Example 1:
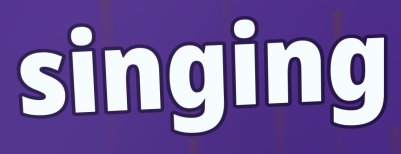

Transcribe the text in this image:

singing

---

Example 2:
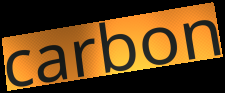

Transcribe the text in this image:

carbon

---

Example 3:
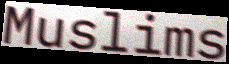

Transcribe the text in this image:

Muslims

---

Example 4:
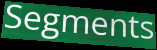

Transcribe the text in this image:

Segments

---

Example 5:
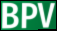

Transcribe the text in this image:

BPV